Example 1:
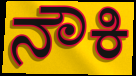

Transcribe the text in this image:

ನೌಕಿ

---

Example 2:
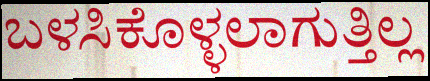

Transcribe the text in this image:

ಬಳಸಿಕೊಳ್ಳಲಾಗುತ್ತಿಲ್ಲ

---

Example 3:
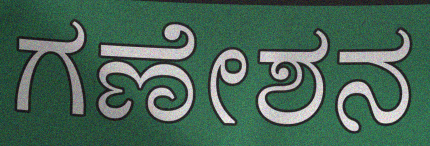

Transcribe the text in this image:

ಗಣೇಶನ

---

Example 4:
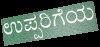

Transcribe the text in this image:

ಉಪ್ಪರಿಗೆಯ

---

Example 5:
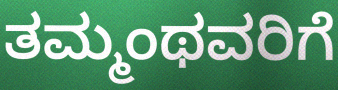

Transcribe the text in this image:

ತಮ್ಮಂಥವರಿಗೆ